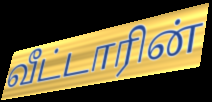
வீட்டாரின்